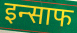
इन्साफ